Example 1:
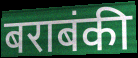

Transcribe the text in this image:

बराबंकी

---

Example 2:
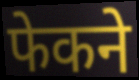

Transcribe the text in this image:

फेकने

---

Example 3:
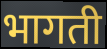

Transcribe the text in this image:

भागती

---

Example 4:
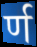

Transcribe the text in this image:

र्ण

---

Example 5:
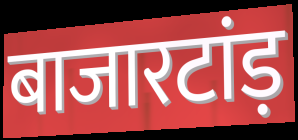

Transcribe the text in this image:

बाजारटांड़